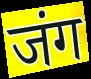
जंग